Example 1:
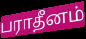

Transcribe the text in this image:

பராதீனம்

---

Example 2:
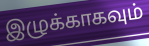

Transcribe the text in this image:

இழுக்காகவும்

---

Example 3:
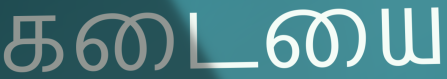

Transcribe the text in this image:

கடையை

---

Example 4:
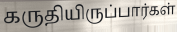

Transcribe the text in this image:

கருதியிருப்பார்கள்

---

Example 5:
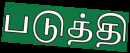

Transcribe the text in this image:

படுத்தி